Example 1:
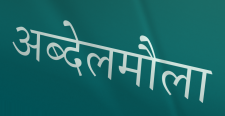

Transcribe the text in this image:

अब्देलमौला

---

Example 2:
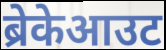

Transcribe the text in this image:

ब्रेकेआउट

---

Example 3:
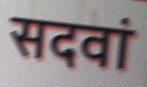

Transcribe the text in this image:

सदवां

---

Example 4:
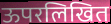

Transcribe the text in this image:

ऊपरलिखित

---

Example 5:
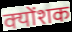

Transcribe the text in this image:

क्योंशक